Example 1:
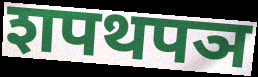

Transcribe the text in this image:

शपथपञ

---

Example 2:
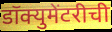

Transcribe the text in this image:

डॉक्युमेंटरीची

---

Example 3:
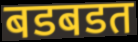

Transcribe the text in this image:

बडबडत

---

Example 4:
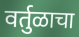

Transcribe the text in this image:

वर्तुळाचा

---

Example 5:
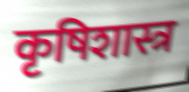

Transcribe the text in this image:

कृषिशास्त्र